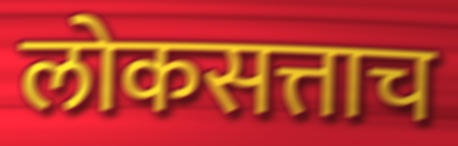
लोकसत्ताच